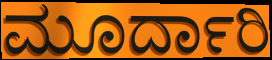
ಮೂರ್ದಾರಿ